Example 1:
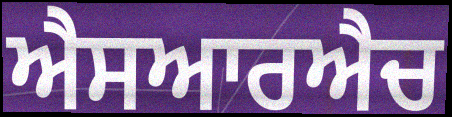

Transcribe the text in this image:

ਐਸਆਰਐਚ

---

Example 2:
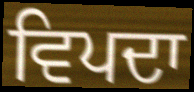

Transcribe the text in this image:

ਵਿਪਦਾ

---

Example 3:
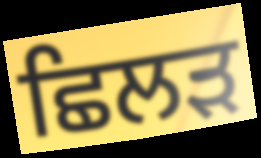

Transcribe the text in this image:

ਛਿਲੜ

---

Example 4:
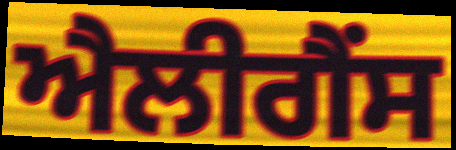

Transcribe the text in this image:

ਐਲੀਗੈਂਸ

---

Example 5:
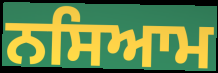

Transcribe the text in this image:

ਨਸਿਆਮ